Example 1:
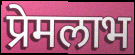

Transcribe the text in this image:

प्रेमलाभ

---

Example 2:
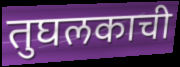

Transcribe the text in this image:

तुघलकाची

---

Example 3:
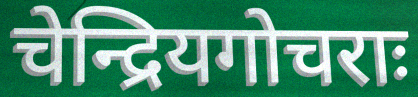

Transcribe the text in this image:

चेन्द्रियगोचराः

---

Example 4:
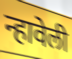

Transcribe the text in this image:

न्हावेली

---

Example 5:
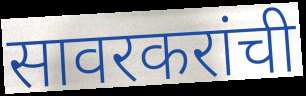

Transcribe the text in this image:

सावरकरांची